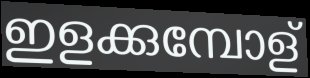
ഇളക്കുമ്പോള്